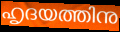
ഹൃദയത്തിനു